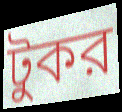
টুকর